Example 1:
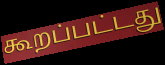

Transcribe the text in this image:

கூறப்பட்டது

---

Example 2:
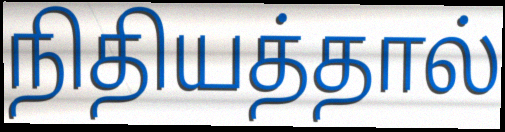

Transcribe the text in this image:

நிதியத்தால்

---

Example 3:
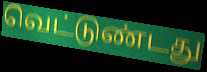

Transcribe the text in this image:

வெட்டுண்டது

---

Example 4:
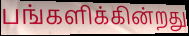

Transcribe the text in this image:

பங்களிக்கின்றது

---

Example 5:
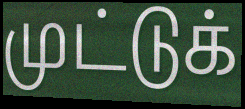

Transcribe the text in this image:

முட்டுக்